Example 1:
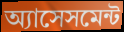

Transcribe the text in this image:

অ্যাসেসমেন্ট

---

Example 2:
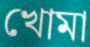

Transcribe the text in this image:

খোমা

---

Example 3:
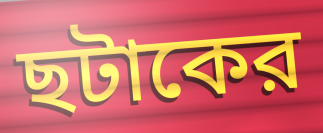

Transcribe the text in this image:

ছটাকের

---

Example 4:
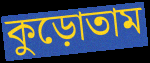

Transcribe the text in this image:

কুড়োতাম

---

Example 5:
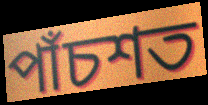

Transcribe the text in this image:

পাঁচশত